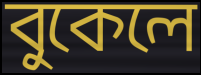
বুকেলে